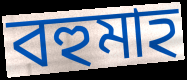
বহুমাহ